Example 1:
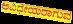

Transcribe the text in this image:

ಅವಿಧೇಯರಾಗುವ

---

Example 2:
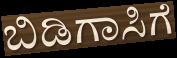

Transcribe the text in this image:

ಬಿಡಿಗಾಸಿಗೆ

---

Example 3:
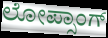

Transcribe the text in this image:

ಲೋಪ್ಸಾಂಗ್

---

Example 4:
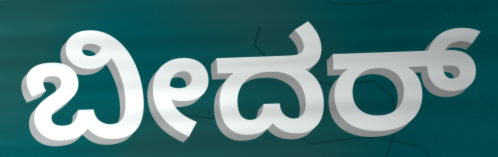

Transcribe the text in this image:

ಬೀದರ್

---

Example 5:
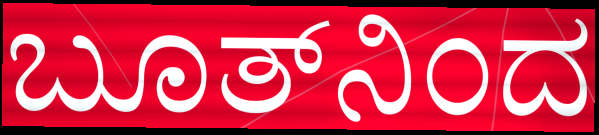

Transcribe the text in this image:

ಬೂತ್‌ನಿಂದ